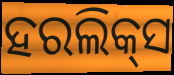
ହରଲିକ୍‌ସ